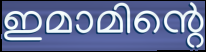
ഇമാമിന്റെ